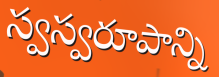
స్వస్వరూపాన్ని